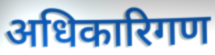
अधिकारिगण